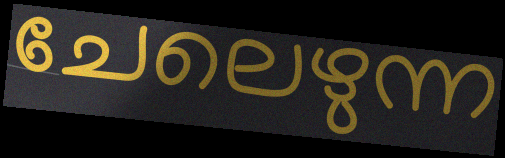
ചേലെഴുന്ന